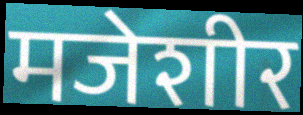
मजेशीर